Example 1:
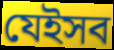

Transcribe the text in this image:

যেইসব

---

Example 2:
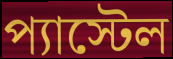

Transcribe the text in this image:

প্যাস্টেল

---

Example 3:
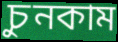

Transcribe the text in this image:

চুনকাম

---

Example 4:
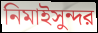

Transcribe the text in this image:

নিমাইসুন্দর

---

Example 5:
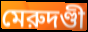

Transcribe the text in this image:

মেরুদণ্ডী